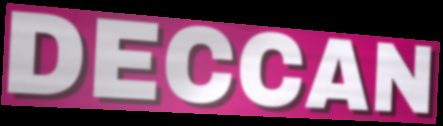
DECCAN